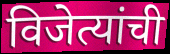
विजेत्यांची